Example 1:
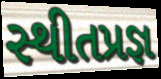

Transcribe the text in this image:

સ્થીતપ્રજ્ઞ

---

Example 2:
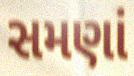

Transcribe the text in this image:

સમણાં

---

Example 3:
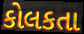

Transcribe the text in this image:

કોલકતા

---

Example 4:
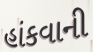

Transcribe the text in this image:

હાંકવાની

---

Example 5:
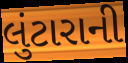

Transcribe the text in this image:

લુંટારાની